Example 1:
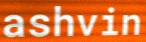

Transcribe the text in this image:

ashvin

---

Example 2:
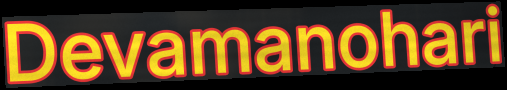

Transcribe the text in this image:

Devamanohari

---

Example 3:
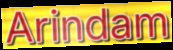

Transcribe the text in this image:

Arindam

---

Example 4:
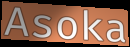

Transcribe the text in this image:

Asoka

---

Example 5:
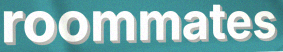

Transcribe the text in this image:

roommates